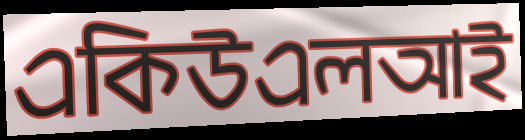
একিউএলআই